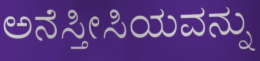
ಅನೆಸ್ತೀಸಿಯವನ್ನು